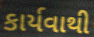
કાર્યવાથી